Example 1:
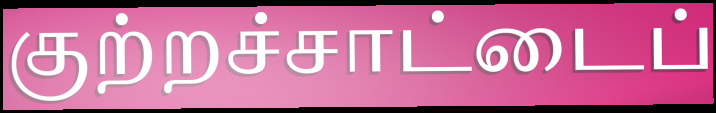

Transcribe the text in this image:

குற்றச்சாட்டைப்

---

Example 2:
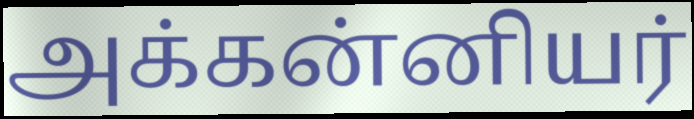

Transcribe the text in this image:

அக்கன்னியர்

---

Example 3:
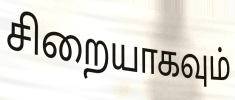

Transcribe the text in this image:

சிறையாகவும்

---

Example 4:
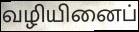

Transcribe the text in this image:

வழியினைப்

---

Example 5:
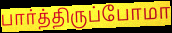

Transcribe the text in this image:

பார்த்திருப்போமா